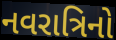
નવરાત્રિનો